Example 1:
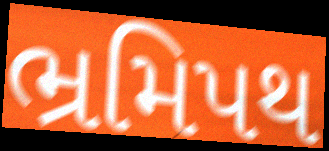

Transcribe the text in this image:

ભ્રમિપથ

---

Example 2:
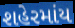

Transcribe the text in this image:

શહેરમાંય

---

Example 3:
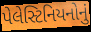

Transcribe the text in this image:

પેલેસ્ટિનિયનોનું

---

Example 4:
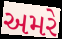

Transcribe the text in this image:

અમરે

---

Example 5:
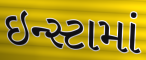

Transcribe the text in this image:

ઇન્સ્ટામાં